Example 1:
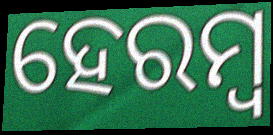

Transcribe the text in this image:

ହେରମ୍ୱ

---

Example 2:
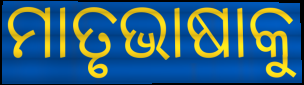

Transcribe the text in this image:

ମାତୃଭାଷାକୁ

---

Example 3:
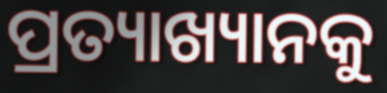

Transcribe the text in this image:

ପ୍ରତ୍ୟାଖ୍ୟାନକୁ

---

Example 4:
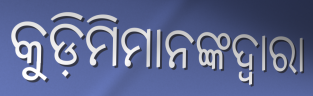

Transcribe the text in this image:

କୁଡ଼ିମିମାନଙ୍କଦ୍ୱାରା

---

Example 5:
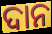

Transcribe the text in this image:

ଦାନ